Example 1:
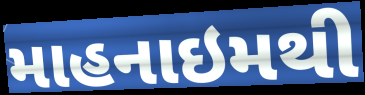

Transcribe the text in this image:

માહનાઇમથી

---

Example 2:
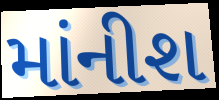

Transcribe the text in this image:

માંનીશ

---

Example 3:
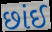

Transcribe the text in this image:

છાંઈ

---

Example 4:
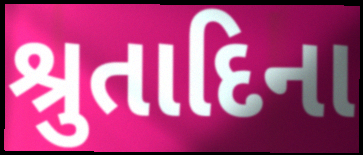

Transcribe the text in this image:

શ્રુતાદિના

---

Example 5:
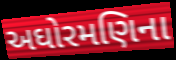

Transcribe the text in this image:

અઘોરમણિના